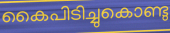
കൈപിടിച്ചുകൊണ്ടു